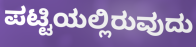
ಪಟ್ಟಿಯಲ್ಲಿರುವುದು